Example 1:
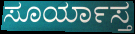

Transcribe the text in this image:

ಸೂರ್ಯಾಸ್ತ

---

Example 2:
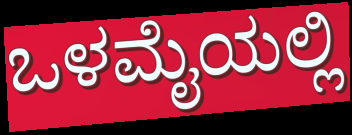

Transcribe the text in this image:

ಒಳಮೈಯಲ್ಲಿ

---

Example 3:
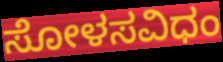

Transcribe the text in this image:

ಸೋಳಸವಿಧಂ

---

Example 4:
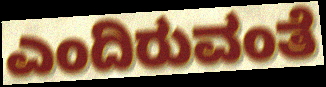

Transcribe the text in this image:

ಎಂದಿರುವಂತೆ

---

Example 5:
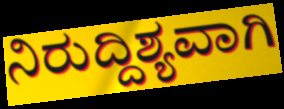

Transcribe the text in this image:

ನಿರುದ್ದಿಶ್ಯವಾಗಿ